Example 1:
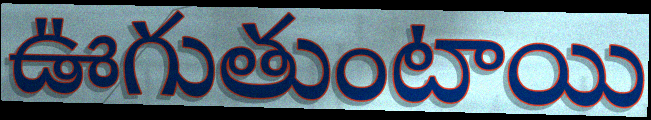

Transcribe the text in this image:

ఊగుతుంటాయి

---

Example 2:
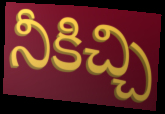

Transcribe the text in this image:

నీకిచ్చి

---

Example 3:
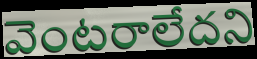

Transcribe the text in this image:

వెంటరాలేదని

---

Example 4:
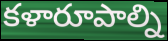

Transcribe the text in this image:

కళారూపాల్ని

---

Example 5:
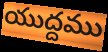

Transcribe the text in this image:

యుద్దము